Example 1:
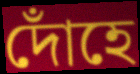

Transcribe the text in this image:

দোঁহে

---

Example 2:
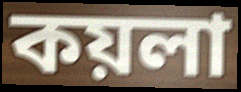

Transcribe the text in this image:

কয়লা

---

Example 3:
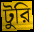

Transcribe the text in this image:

টুরি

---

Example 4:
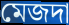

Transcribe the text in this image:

মেজদা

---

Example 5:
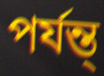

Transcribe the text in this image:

পর্যন্ত্